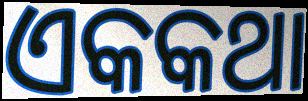
ଏକକଥା